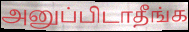
அனுப்பிடாதீங்க